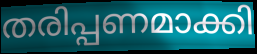
തരിപ്പണമാക്കി